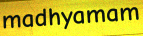
madhyamam